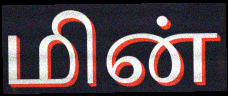
மின்